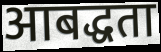
आबद्धता